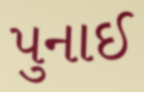
પુનાઈ